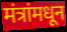
मंत्रांमधून